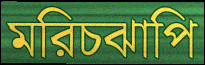
মরিচঝাপি